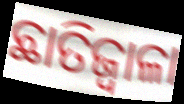
ଛାତିଜ୍ୱାଳା